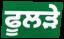
ਫੂਲੜੇ